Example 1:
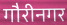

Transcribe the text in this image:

गौरीनगर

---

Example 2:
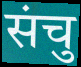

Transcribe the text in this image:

संचु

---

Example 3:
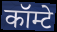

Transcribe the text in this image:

कॉम्टे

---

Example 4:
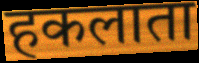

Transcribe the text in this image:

हकलाता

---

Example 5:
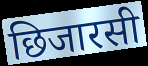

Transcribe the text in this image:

छिजारसी